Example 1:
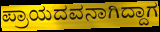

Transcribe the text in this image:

ಪ್ರಾಯದವನಾಗಿದ್ದಾಗ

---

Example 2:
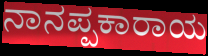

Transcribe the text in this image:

ನಾನಪ್ಪಕಾರಾಯ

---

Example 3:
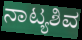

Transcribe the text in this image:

ನಾಟ್ಯಶಿವ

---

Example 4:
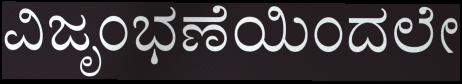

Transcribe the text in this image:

ವಿಜೃಂಭಣೆಯಿಂದಲೇ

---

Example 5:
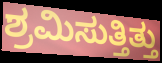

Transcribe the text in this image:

ಶ್ರಮಿಸುತ್ತಿತ್ತು